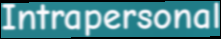
Intrapersonal